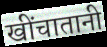
खींचातानी